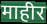
माहीर